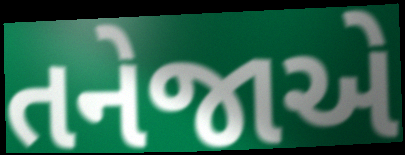
તનેજાએ